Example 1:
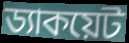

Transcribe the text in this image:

ড্যাকয়েট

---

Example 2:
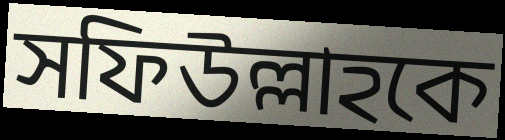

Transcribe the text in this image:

সফিউল্লাহকে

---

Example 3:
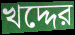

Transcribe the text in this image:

খদ্দের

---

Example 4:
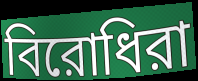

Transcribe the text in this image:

বিরোধিরা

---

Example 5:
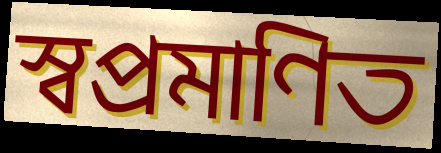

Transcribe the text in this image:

স্বপ্রমাণিত